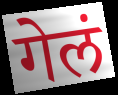
गेलं